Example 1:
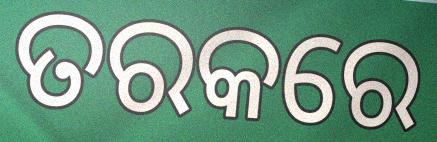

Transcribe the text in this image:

ତରକରେ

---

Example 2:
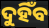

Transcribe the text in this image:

ଦୁହିଁବ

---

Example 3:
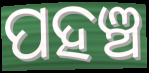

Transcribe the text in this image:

ପହଞ୍ଚ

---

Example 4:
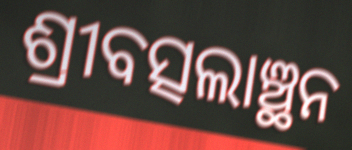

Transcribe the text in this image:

ଶ୍ରୀବତ୍ସଲାଞ୍ଛନ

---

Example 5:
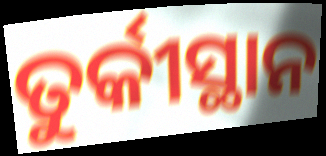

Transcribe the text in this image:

ତୁର୍କୀସ୍ଥାନ